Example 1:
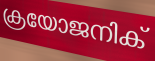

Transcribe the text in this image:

ക്രയോജനിക്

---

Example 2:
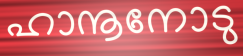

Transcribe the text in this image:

ഹാനൂനോടു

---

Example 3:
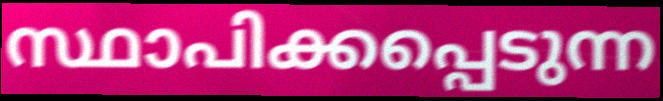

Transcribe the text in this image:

സ്ഥാപിക്കപ്പെടുന്ന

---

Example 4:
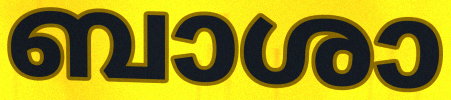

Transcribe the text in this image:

ബാശാ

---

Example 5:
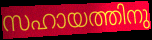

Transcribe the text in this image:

സഹായത്തിനു